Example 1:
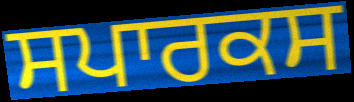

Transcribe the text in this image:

ਸਪਾਰਕਸ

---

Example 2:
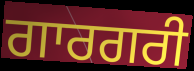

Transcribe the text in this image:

ਗਾਰਗਰੀ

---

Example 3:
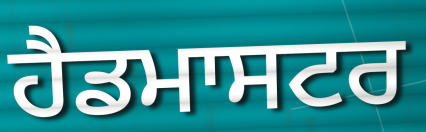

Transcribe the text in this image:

ਹੈਡਮਾਸਟਰ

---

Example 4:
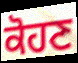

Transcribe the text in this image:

ਕੋਹਣ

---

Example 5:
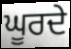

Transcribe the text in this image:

ਘੂਰਦੇ